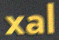
xal